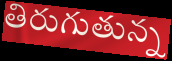
తిరుగుతున్న